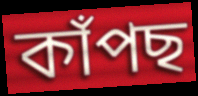
কাঁপছ